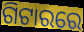
ଗିଟାରରେ